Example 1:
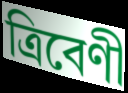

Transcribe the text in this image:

ত্ৰিবেণী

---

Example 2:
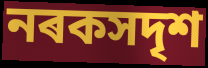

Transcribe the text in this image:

নৰকসদৃশ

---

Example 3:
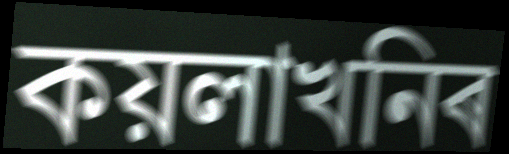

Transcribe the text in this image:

কয়লাখনিৰ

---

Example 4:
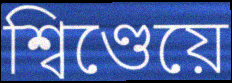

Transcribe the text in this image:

শ্বিণ্ডেয়ে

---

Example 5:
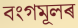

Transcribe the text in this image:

বংগমূলৰ